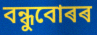
বন্ধুবোৰৰ